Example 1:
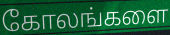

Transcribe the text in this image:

கோலங்களை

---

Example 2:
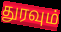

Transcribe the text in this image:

துரவும்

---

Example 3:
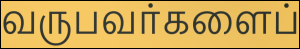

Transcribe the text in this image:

வருபவர்களைப்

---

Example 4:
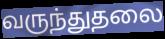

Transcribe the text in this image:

வருந்துதலை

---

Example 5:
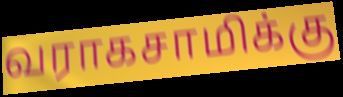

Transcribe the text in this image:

வராகசாமிக்கு